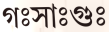
গঃসাঃগুঃ